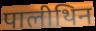
पालीथिन